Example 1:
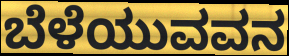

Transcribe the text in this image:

ಬೆಳೆಯುವವನ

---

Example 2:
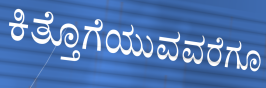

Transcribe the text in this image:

ಕಿತ್ತೊಗೆಯುವವರೆಗೂ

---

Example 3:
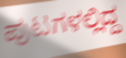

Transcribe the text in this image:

ಪುಟಗಳಲ್ಲಿದ್ದ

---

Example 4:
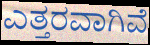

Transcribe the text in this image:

ಎತ್ತರವಾಗಿವೆ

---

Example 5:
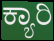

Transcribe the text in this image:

ಕ್ಯಾರಿ